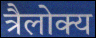
त्रैलोक्य